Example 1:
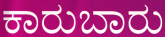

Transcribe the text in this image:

ಕಾರುಬಾರು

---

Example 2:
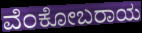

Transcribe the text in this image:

ವೆಂಕೋಬರಾಯ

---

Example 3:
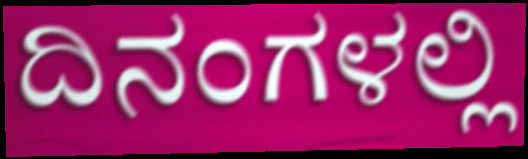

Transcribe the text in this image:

ದಿನಂಗಳಲ್ಲಿ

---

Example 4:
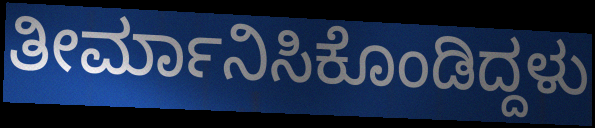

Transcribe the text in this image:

ತೀರ್ಮಾನಿಸಿಕೊಂಡಿದ್ದಳು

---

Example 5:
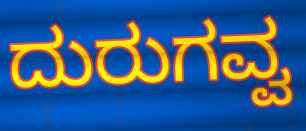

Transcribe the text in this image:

ದುರುಗವ್ವ